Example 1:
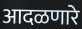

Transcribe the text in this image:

आदळणारे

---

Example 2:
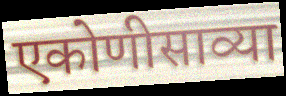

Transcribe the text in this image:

एकोणीसाव्या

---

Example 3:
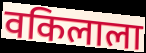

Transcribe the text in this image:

वकिलाला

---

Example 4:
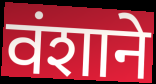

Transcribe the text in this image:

वंशाने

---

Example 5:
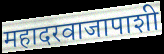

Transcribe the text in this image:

महादरवाजापाशी